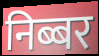
निब्बर